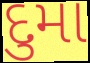
દુમા